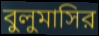
বুলুমাসির